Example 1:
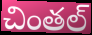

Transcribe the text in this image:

చింతల్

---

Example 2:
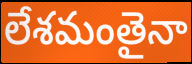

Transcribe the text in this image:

లేశమంతైనా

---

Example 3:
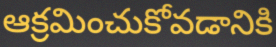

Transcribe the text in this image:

ఆక్రమించుకోవడానికి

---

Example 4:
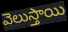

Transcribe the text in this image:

వెలుస్తాయి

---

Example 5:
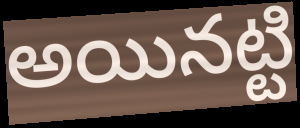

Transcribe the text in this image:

అయినట్టి